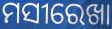
ମସୀରେଖା